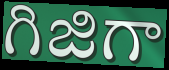
గిజిగా